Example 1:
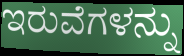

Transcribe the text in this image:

ಇರುವೆಗಳನ್ನು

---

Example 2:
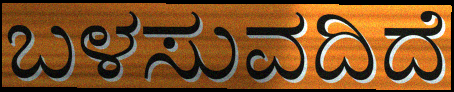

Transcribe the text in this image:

ಬಳಸುವದಿದೆ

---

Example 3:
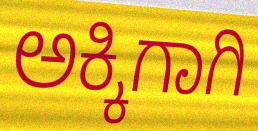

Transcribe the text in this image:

ಅಕ್ಕಿಗಾಗಿ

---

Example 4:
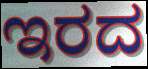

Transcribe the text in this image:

ಇರದ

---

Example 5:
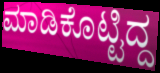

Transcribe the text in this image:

ಮಾಡಿಕೊಟ್ಟಿದ್ದ